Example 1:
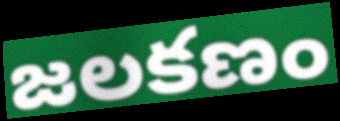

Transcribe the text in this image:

జలకణం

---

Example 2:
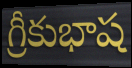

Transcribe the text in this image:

గ్రీకుభాష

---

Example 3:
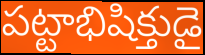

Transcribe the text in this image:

పట్టాభిషిక్తుడై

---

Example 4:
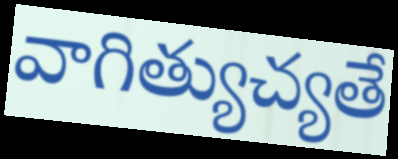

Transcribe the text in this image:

వాగిత్యుచ్యతే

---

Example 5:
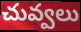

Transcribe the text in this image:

చువ్వలు